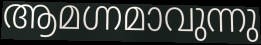
ആമഗ്നമാവുന്നു